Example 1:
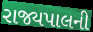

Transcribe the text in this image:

રાજ્યપાલની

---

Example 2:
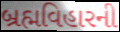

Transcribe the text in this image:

બ્રહ્મવિહારની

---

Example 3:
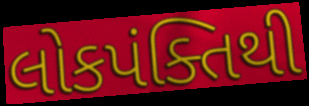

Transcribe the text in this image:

લોકપંક્તિથી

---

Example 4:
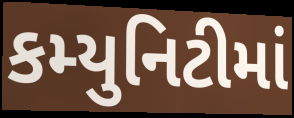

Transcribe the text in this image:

કમ્યુનિટીમાં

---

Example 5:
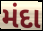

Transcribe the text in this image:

મંદા